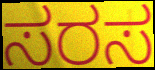
ಸರಸ